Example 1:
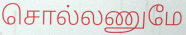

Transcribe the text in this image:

சொல்லணுமே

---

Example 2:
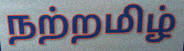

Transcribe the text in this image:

நற்றமிழ்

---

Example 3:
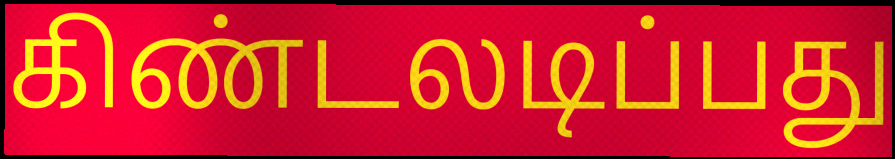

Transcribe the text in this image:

கிண்டலடிப்பது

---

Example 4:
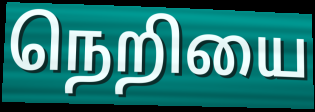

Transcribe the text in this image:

நெறியை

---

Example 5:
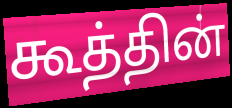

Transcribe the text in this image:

கூத்தின்